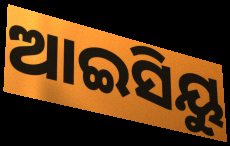
ଆଇସିୟୁ